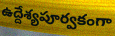
ఉద్దేశ్యపూర్వకంగా